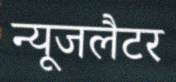
न्यूजलैटर